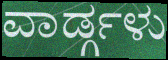
ವಾರ್ಡ್ಗಳು